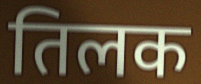
तिलक